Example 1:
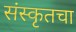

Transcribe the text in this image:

संस्कृतचा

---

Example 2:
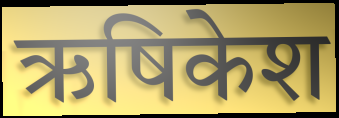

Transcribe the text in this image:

ऋषिकेश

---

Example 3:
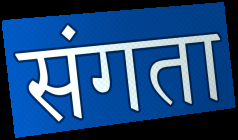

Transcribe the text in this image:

संगता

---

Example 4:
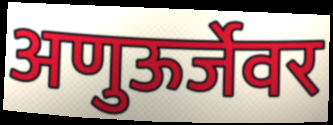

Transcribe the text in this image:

अणुऊर्जेवर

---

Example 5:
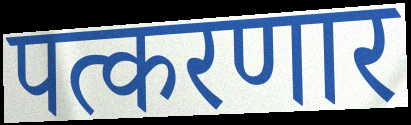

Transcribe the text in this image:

पत्करणार